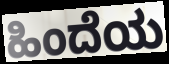
ಹಿಂದೆಯ